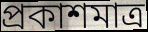
প্রকাশমাত্র